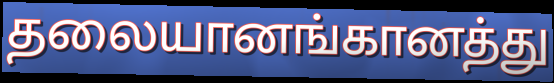
தலையானங்கானத்து